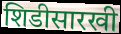
शिडीसारखी